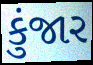
કુંજાર